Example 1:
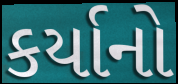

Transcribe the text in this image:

કર્યાનો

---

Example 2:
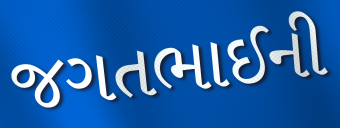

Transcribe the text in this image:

જગતભાઈની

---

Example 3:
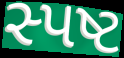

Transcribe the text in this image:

સ્પષ્ટ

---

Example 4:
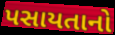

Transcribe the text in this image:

પસાયતાનો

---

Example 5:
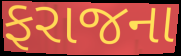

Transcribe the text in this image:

ફરાજના